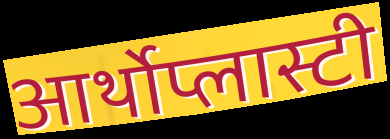
आर्थोप्लास्टी